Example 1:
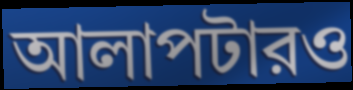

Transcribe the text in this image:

আলাপটারও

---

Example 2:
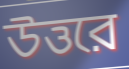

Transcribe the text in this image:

উত্তরে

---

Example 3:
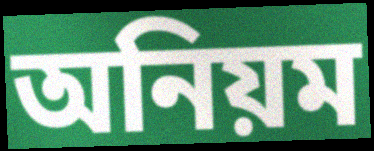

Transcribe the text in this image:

অনিয়ম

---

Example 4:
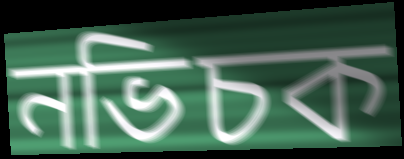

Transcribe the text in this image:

নভিচক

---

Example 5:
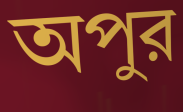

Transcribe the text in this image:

অপুর